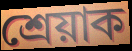
শ্ৰেয়াক